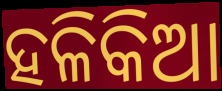
ହଳିକିଆ